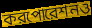
করপোরেশনও